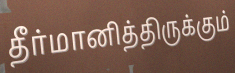
தீர்மானித்திருக்கும்